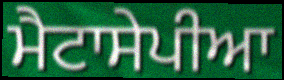
ਮੈਟਾਸੇਪੀਆ